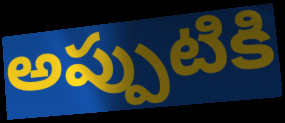
అప్పుటికి